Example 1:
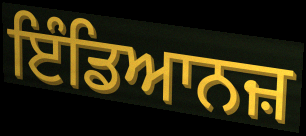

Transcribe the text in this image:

ਇੰਡਿਆਨਜ਼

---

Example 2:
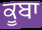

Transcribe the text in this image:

ਕੂਬਾ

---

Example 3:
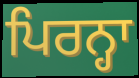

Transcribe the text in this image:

ਪਿਰਨ੍ਹਾ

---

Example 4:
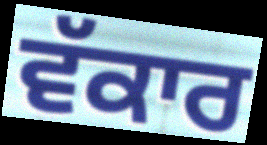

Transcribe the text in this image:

ਵੱਕਾਰ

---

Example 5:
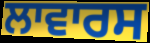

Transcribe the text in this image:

ਲਾਵਾਰਸ